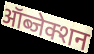
ऑब्जेक्शन